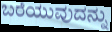
ಬರೆಯುವುದನ್ನು